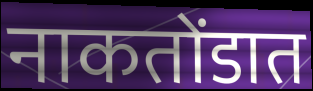
नाकतोंडात